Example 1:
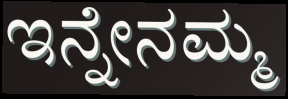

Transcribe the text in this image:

ಇನ್ನೇನಮ್ಮ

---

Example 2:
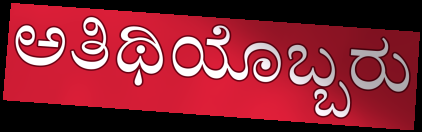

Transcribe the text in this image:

ಅತಿಥಿಯೊಬ್ಬರು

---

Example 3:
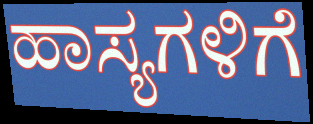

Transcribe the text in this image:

ಹಾಸ್ಯಗಳಿಗೆ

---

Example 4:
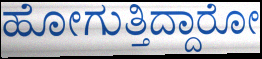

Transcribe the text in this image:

ಹೋಗುತ್ತಿದ್ದಾರೋ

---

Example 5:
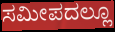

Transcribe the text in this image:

ಸಮೀಪದಲ್ಲೂ